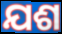
ଯଶ